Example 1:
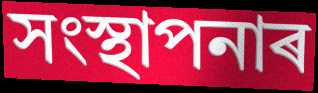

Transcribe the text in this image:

সংস্থাপনাৰ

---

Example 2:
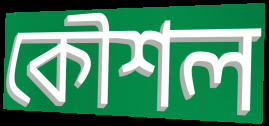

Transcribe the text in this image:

কৌশল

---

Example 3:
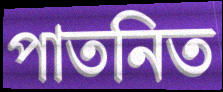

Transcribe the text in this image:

পাতনিত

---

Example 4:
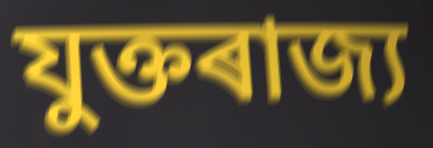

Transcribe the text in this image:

যুক্তৰাজ্য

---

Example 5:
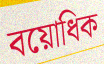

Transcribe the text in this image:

বয়োধিক